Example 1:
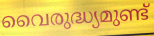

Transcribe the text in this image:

വൈരുദ്ധ്യമുണ്ട്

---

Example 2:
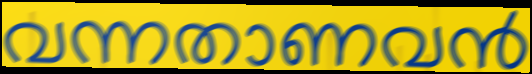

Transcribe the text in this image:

വന്നതാണവൻ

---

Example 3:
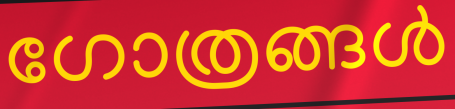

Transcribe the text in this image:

ഗോത്രങ്ങൾ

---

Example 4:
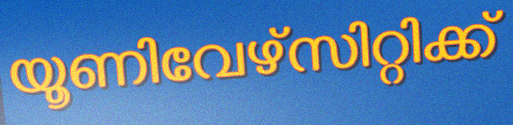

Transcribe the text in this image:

യൂണിവേഴ്സിറ്റിക്ക്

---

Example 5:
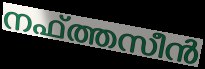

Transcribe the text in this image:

നഫ്ത്തസീൻ